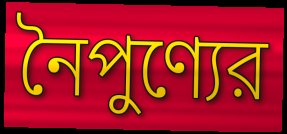
নৈপুণ্যের